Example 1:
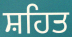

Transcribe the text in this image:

ਸ਼ਹਿਤ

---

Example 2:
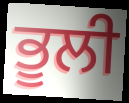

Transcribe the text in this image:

ਭੂਲੀ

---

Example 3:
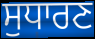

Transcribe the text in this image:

ਸੁਧਾਰਣ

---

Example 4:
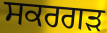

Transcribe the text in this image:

ਸਕਰਗੜ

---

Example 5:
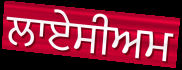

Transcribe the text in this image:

ਲਾਏਸੀਅਮ